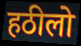
हठीलो